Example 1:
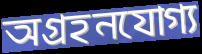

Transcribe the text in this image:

অগ্রহনযোগ্য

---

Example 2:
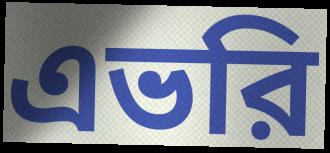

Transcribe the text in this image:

এভরি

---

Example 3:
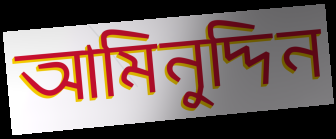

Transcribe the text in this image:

আমিনুদ্দিন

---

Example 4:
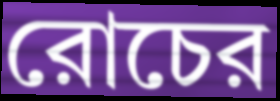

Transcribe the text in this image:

রোচের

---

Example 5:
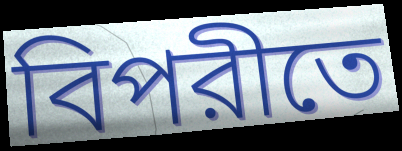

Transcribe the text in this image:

বিপরীতে